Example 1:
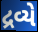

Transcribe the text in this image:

દ્રવ્યે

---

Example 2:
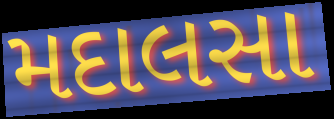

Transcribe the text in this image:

મદાલસા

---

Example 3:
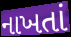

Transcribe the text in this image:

નાખતાં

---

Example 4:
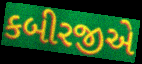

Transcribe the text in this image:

કબીરજીએ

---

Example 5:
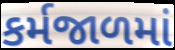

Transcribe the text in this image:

કર્મજાળમાં